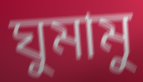
ঘুমামু